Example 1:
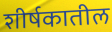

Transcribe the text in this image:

शीर्षकातील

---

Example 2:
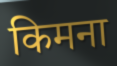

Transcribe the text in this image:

किमना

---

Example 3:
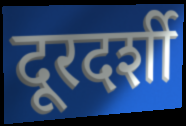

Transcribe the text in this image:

दूरदर्शी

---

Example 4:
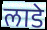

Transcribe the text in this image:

लाडे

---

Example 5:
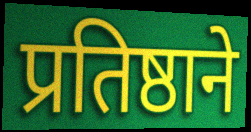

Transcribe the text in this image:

प्रतिष्ठाने